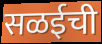
सळईची